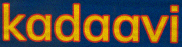
kadaavi